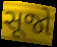
સૂજો